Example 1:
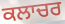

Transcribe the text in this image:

ਕਲਾਚਰ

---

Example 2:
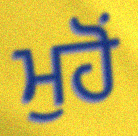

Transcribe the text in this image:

ਮੁਹੋਂ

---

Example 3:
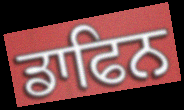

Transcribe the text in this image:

ਡਾਫਿਨ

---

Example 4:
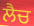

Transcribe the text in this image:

ਲੈਚ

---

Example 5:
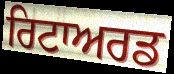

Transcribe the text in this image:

ਰਿਟਾਅਰਡ